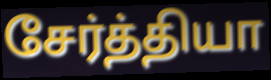
சேர்த்தியா